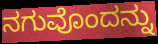
ನಗುವೊಂದನ್ನು